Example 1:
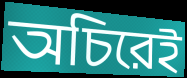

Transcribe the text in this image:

অচিরেই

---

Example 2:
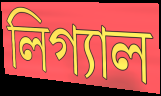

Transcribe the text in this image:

লিগ্যাল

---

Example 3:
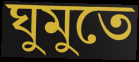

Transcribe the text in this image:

ঘুমুতে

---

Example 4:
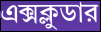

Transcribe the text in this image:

এক্সক্লুডার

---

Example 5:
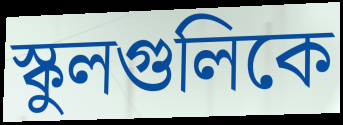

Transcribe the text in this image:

স্কুলগুলিকে